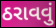
ઠરાવવું